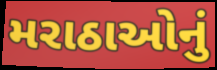
મરાઠાઓનું